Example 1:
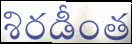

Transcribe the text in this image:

శిరడీంత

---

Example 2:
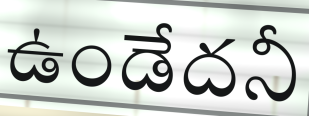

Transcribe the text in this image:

ఉండేదనీ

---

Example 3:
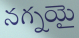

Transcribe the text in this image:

నగ్నయై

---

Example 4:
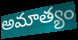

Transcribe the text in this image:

అమాత్యం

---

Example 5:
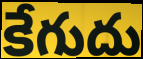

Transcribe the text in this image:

కేగుదు